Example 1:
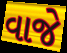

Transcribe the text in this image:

વાજે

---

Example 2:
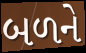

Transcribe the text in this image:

બળને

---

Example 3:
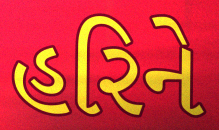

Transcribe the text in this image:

હરિને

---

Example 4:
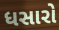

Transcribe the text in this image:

ધસારો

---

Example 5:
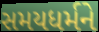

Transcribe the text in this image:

સમયધર્મને